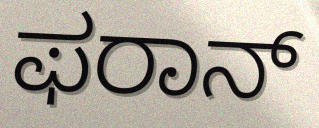
ಫರಾನ್